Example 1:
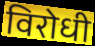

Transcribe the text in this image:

विरोधी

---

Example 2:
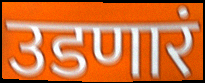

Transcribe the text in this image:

उडणारं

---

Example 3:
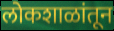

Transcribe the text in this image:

लोकशाळांतून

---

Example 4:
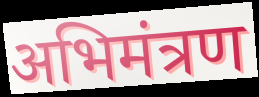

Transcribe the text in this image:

अभिमंत्रण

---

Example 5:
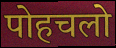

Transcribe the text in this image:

पोहचलो